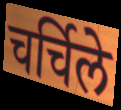
चर्चिले